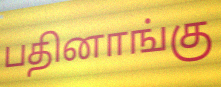
பதினாங்கு